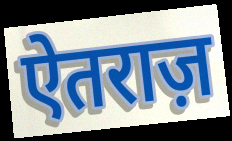
ऐतराज़